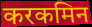
करकमिन